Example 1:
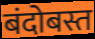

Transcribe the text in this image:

बंदोबस्त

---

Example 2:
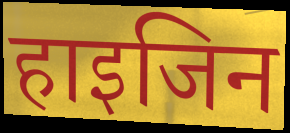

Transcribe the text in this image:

हाइजिन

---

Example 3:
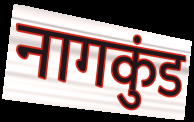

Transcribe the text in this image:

नागकुंड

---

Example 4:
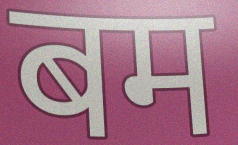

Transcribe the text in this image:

बम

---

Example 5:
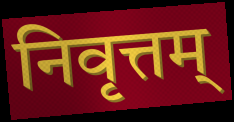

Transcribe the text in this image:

निवृत्तम्